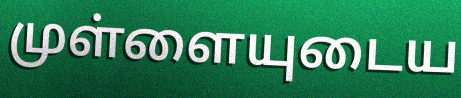
முள்ளையுடைய